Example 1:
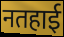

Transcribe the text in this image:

नतहाई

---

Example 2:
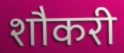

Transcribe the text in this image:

शौकरी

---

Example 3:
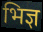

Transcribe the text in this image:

भिज्ञ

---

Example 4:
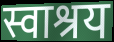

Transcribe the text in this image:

स्वाश्रय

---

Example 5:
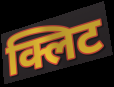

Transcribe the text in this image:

क्लिट